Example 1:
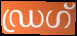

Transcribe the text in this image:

ഡ്രഗ്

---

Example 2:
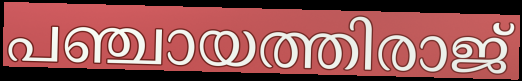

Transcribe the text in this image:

പഞ്ചായത്തിരാജ്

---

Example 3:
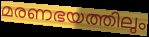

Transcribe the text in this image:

മരണഭയത്തിലും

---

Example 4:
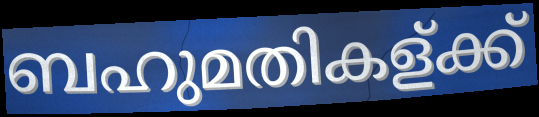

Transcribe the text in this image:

ബഹുമതികള്ക്ക്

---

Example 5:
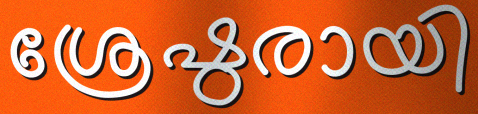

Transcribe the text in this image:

ശ്രേഷ്ഠരായി